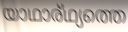
യാഥാര്ഥ്യത്തെ